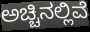
ಅಚ್ಚಿನಲ್ಲಿವೆ